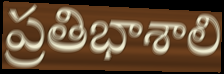
ప్రతిభాశాలి